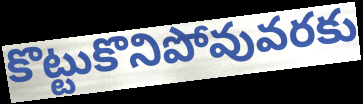
కొట్టుకొనిపోవువరకు